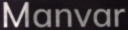
Manvar